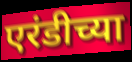
एरंडीच्या